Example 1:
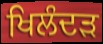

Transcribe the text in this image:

ਖਿਲੰਦੜ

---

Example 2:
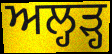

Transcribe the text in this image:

ਅਲ੍ਹੜ੍ਹ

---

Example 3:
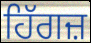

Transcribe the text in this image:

ਹਿੱਗਜ਼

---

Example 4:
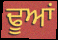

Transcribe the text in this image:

ਢੂਆਂ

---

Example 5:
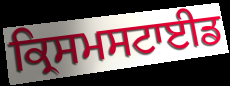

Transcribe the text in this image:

ਕ੍ਰਿਸਮਸਟਾਈਡ